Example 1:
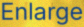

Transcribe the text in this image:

Enlarge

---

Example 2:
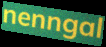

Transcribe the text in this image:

nenngal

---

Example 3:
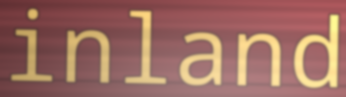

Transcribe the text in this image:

inland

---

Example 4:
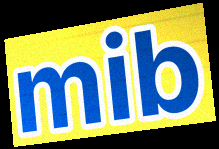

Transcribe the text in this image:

mib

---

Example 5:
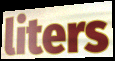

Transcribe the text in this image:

liters